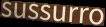
sussurro